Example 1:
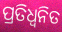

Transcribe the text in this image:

ପ୍ରତିଧ୍ଵନିତ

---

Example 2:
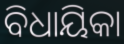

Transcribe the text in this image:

ବିଧାୟିକା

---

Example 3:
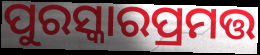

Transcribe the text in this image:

ପୁରସ୍କାରପ୍ରମତ୍ତ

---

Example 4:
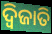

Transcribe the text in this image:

ଦ୍ୱିଜାତି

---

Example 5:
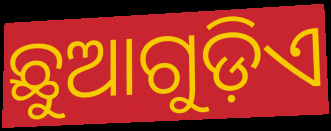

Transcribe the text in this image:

ଛୁଆଗୁଡ଼ିଏ